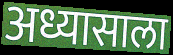
अध्यासाला